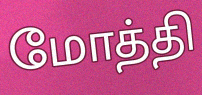
மோத்தி